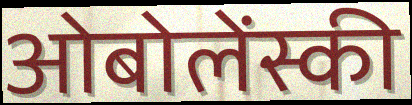
ओबोलेंस्की